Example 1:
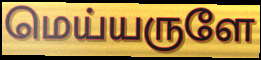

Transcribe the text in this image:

மெய்யருளே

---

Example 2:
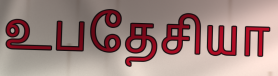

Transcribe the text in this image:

உபதேசியா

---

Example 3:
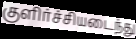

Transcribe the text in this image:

குளிர்ச்சியடைந்து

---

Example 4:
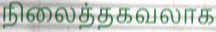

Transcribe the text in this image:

நிலைத்தகவலாக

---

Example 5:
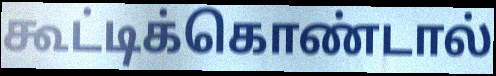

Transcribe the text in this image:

கூட்டிக்கொண்டால்